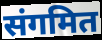
संगमित